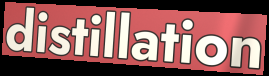
distillation